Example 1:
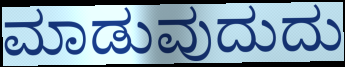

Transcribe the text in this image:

ಮಾಡುವುದುದು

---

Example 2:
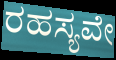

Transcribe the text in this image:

ರಹಸ್ಯವೇ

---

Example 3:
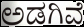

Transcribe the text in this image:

ಅಡಗಿವೆ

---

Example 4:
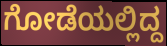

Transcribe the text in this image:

ಗೋಡೆಯಲ್ಲಿದ್ದ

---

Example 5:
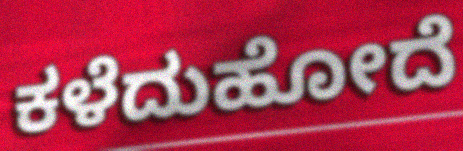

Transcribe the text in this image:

ಕಳೆದುಹೋದೆ